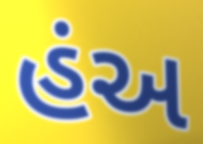
હંઅ